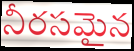
నీరసమైన